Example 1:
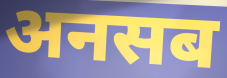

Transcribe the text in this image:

अनसब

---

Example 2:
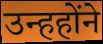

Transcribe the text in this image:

उन्हहोंने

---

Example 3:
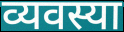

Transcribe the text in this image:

व्यवस्या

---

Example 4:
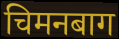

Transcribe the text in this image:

चिमनबाग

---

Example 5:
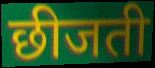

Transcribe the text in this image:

छीजती